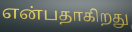
என்பதாகிறது